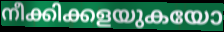
നീക്കിക്കളയുകയോ